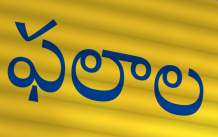
ఫలాల